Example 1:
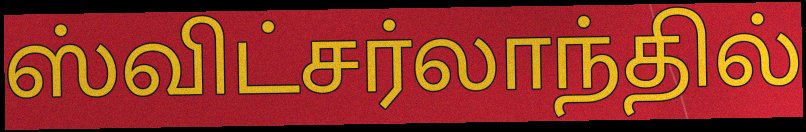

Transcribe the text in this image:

ஸ்விட்சர்லாந்தில்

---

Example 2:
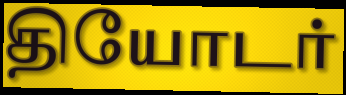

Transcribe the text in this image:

தியோடர்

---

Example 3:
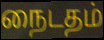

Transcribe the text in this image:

நைடதம்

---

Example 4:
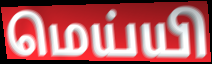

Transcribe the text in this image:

மெய்யி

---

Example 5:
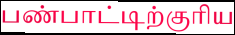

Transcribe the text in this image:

பண்பாட்டிற்குரிய